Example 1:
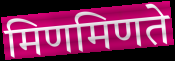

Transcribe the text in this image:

मिणमिणते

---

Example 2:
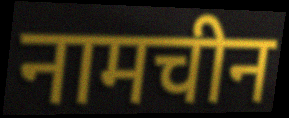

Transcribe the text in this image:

नामचीन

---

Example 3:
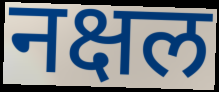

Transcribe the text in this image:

नक्षल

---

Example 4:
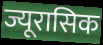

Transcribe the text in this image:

ज्यूरासिक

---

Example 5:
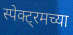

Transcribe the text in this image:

स्पेक्ट्रमच्या